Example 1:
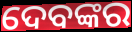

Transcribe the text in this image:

ଦେବଙ୍କର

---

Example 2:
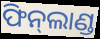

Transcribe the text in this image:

ଫିନ୍‌ଲାଣ୍ଡ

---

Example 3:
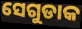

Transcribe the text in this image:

ସେଗୁଡାକ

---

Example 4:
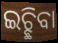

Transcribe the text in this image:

ଇଚ୍ଛିବା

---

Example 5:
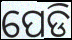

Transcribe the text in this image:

ପେଡି